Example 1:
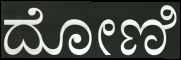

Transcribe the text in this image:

ದೋಣಿ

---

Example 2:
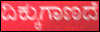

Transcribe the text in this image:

ದಿಕ್ಕುಗಾಣದೆ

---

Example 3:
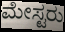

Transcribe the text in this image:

ಮೇಸ್ಟರು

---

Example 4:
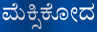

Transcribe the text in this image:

ಮೆಕ್ಸಿಕೋದ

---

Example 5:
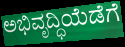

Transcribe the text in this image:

ಅಭಿವೃದ್ಧಿಯೆಡೆಗೆ